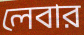
লেবার